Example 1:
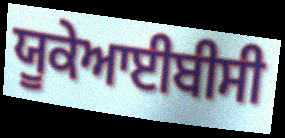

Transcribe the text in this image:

ਯੂਕੇਆਈਬੀਸੀ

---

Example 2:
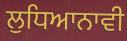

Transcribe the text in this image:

ਲੁਧਿਆਨਾਵੀ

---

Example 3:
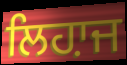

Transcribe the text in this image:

ਲਿਹ਼ਾਜ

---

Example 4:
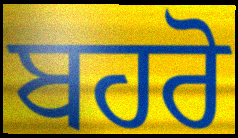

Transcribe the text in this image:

ਬਹਰੋ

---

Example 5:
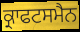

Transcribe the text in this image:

ਕ੍ਰਾਫਟਸਮੈਨ